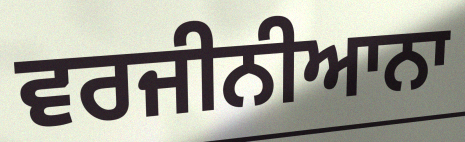
ਵਰਜੀਨੀਆਨਾ